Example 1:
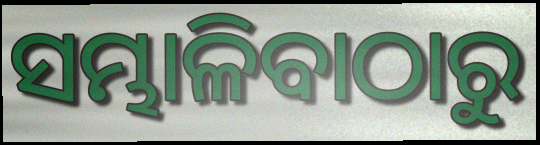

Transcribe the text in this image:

ସମ୍ଭାଳିବାଠାରୁ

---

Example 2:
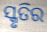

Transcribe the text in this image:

ସ୍କୃତିର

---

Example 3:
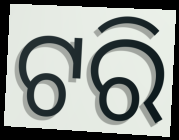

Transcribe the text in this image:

ଟରି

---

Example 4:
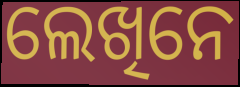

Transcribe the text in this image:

ଲେଖିନେ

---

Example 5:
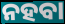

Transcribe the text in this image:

ନହବା